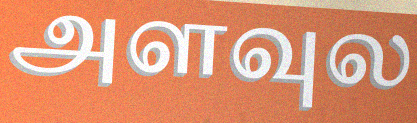
அளவுல